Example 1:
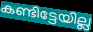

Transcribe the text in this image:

കണ്ടിട്ടേയില്ല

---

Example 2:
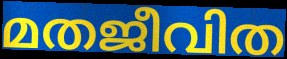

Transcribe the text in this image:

മതജീവിത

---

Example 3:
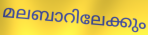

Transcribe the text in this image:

മലബാറിലേക്കും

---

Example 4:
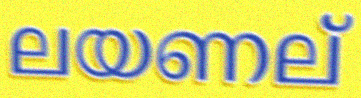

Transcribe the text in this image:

ലയണല്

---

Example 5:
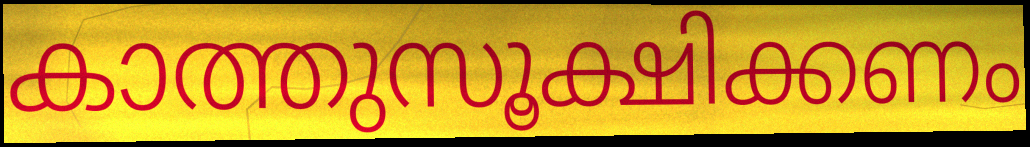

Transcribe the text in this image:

കാത്തുസൂക്ഷിക്കണം